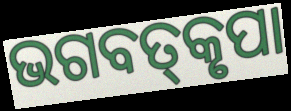
ଭଗବତ୍‌କୃପା